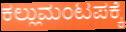
ಕಲ್ಲುಮಂಟಪಕ್ಕೆ